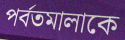
পর্বতমালাকে